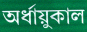
অর্ধায়ুকাল